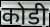
कोडी